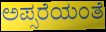
ಅಪ್ಸರೆಯಂತೆ